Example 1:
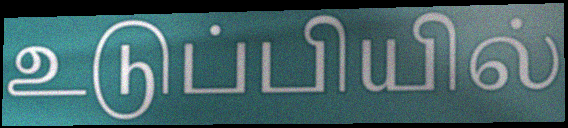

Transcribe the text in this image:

உடுப்பியில்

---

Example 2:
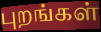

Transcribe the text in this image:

புறங்கள்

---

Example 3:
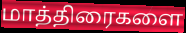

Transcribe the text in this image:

மாத்திரைகளை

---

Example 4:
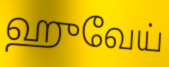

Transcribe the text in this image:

ஹுவேய்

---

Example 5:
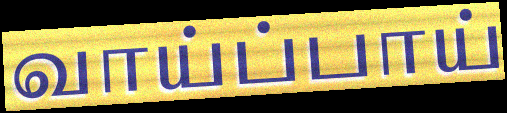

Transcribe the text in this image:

வாய்ப்பாய்